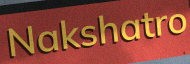
Nakshatro